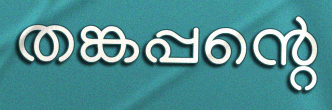
തങ്കപ്പന്റെ